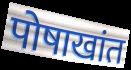
पोषाखांत